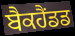
ਬੈਕਹੈਂਡਡ